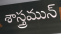
శాస్త్రమున్